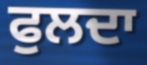
ਫੁਲਦਾ